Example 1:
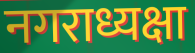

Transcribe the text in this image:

नगराध्यक्षा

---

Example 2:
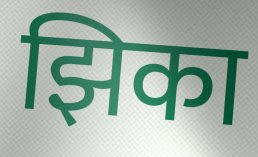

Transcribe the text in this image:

झिका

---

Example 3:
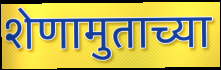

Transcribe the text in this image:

शेणामुताच्या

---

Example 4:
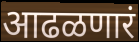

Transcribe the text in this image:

आढळणारं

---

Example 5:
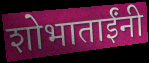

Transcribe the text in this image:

शोभाताईंनी